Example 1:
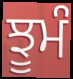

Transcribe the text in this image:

ਝੂਮੰ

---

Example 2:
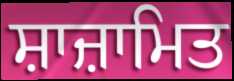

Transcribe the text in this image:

ਸ਼ਾਜ਼ਾਮਿਤ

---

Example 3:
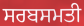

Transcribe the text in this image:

ਸਰਬਸਮਤੀ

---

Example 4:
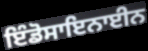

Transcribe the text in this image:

ਇੰਡੋਸਾਇਨਾਈਨ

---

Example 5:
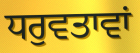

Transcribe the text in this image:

ਧਰੁਵਤਾਵਾਂ